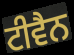
ਟੀਵੈਨ